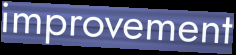
improvement